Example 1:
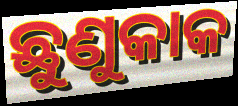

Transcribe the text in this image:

ଛୁଣୁକାକ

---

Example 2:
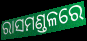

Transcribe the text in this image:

ରାସମଣ୍ଡଳରେ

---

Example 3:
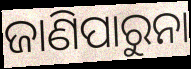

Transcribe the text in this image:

ଜାଣିପାରୁନା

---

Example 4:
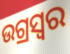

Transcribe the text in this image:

ଉଗ୍ରସ୍ୱର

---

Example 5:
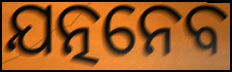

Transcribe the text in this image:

ଯତ୍ନନେବ